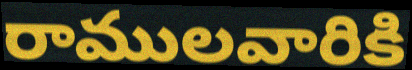
రాములవారికి